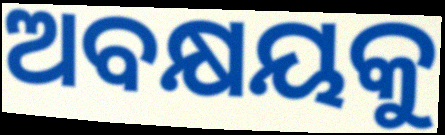
ଅବକ୍ଷୟକୁ